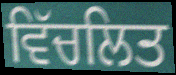
ਵਿੱਚਲਿਤ